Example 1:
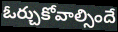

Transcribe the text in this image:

ఓర్చుకోవాల్సిందే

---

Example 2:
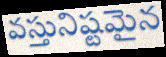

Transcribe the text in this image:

వస్తునిష్టమైన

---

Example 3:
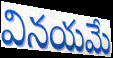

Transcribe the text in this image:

వినయమే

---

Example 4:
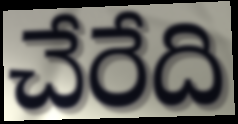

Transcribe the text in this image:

చేరేది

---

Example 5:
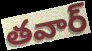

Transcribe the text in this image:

తవార్